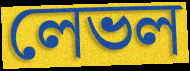
লেভল